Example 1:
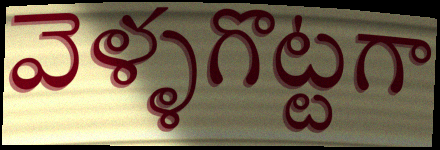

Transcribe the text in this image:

వెళ్ళగొట్టగా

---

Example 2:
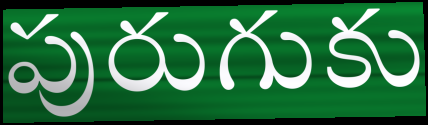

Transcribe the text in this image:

పురుగుకు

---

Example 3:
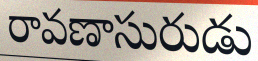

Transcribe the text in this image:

రావణాసురుడు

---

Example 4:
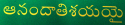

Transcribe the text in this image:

ఆనందాతిశయయై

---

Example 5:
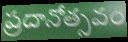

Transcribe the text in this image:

ప్రదానోత్సవం